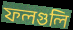
ফলগুলি